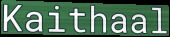
Kaithaal